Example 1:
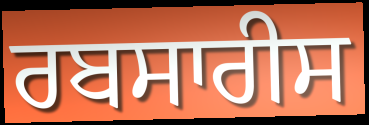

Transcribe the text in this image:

ਰਬਸਾਰੀਸ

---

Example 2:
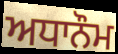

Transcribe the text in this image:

ਅਧਾਨੌਮ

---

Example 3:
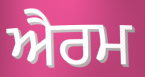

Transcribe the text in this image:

ਐਰਮ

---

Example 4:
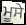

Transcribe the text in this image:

ਮੂਸੇ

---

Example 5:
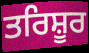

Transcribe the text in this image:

ਤਰਿਸ਼ੂਰ